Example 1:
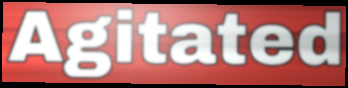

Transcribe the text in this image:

Agitated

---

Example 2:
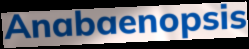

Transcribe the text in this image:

Anabaenopsis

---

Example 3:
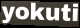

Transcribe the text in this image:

yokuti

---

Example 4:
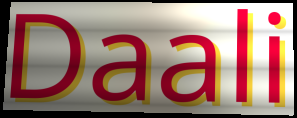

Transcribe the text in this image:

Daali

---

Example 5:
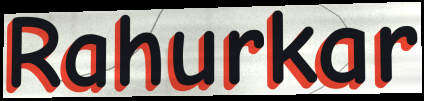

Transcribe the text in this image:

Rahurkar